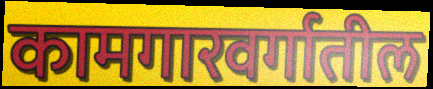
कामगारवर्गातील